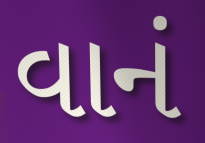
વાનં